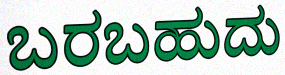
ಬರಬಹುದು